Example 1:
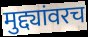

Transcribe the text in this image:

मुद्द्यांवरच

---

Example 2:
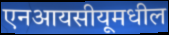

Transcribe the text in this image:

एनआयसीयूमधील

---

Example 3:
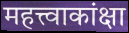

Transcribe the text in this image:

महत्त्वाकांक्षा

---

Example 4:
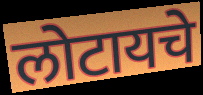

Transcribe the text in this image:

लोटायचे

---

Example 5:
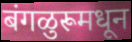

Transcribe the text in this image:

बंगळुरूमधून